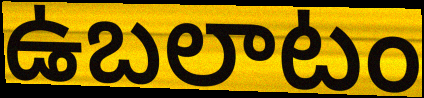
ఉబలాటం